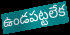
ఉండపట్టలేక